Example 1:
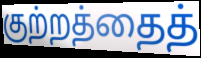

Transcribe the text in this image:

குற்றத்தைத்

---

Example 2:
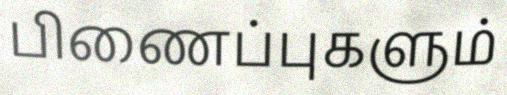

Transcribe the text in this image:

பிணைப்புகளும்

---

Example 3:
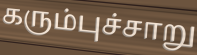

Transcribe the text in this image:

கரும்புச்சாறு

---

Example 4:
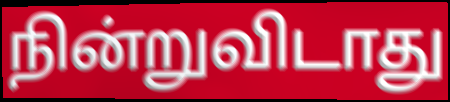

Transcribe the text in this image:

நின்றுவிடாது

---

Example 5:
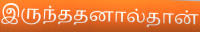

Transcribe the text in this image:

இருந்ததனால்தான்